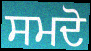
ਸਮਦੋ